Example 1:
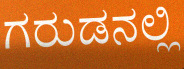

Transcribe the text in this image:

ಗರುಡನಲ್ಲಿ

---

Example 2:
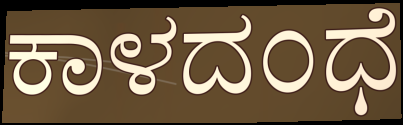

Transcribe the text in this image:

ಕಾಳದಂಧೆ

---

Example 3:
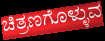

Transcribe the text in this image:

ಚಿತ್ರಣಗೊಳ್ಳುವ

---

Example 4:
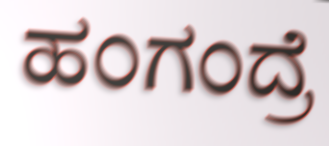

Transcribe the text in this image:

ಹಂಗಂದ್ರೆ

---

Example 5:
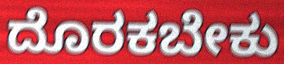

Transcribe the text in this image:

ದೊರಕಬೇಕು